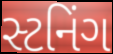
સ્ટનિંગ